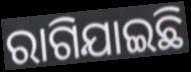
ରାଗିଯାଇଛି